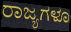
ರಾಜ್ಯಗಳೂ